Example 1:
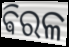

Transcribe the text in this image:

ଵିରଳ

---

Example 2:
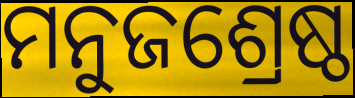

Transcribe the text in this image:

ମନୁଜଶ୍ରେଷ୍ଠ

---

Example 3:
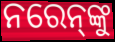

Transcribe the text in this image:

ନରେନ୍‌ଙ୍କୁ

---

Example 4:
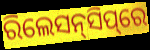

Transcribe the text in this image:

ରିଲେସନ୍‌ସିପ୍‌ରେ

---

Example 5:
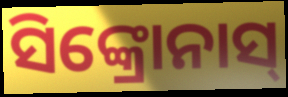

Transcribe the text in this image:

ସିଙ୍କ୍ରୋନାସ୍